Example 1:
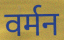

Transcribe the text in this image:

वर्मन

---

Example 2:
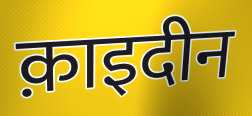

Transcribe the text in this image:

क़ाइदीन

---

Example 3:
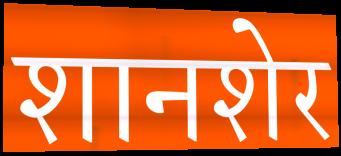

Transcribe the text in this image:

शानशेर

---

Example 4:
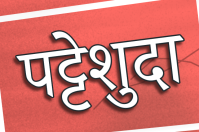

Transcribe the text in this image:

पट्टेशुदा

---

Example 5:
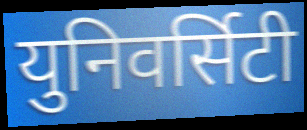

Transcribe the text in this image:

युनिवर्सिटी